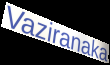
Vaziranaka